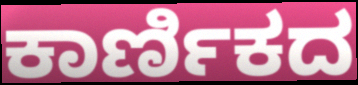
ಕಾರ್ಣಿಕದ